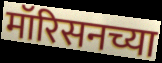
मॉरिसनच्या